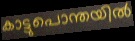
കാട്ടുപൊന്തയിൽ